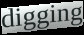
digging